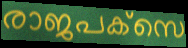
രാജപക്‌സെ